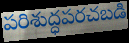
పరిశుద్ధపరచబడి